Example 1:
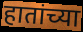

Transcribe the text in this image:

हातांच्या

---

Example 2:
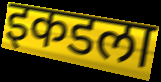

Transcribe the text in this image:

इकडला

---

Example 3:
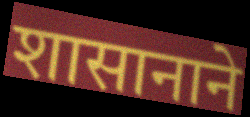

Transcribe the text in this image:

शासानाने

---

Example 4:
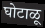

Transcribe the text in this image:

घोटाळू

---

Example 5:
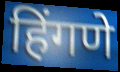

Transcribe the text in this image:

हिंगणे